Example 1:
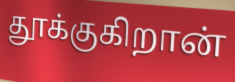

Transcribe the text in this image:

தூக்குகிறான்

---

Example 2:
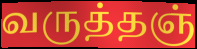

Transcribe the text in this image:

வருத்தஞ்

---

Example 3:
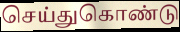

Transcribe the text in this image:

செய்துகொண்டு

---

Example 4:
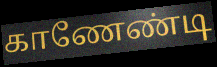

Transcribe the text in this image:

காணேண்டி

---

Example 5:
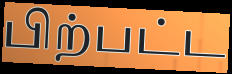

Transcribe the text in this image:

பிற்பட்ட